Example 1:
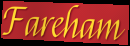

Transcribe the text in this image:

Fareham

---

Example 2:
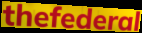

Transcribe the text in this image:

thefederal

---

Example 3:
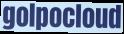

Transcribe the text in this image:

golpocloud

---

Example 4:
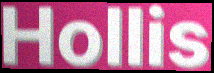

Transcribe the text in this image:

Hollis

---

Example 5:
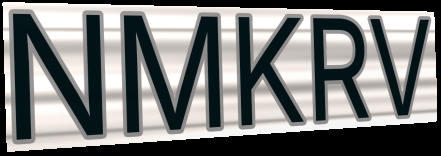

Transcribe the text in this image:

NMKRV